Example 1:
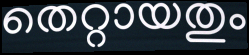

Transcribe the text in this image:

തെറ്റായതും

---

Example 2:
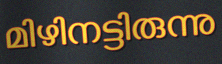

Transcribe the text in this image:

മിഴിനട്ടിരുന്നു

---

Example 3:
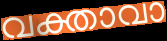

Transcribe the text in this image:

വക്താവാ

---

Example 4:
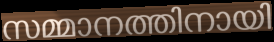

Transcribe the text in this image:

സമ്മാനത്തിനായി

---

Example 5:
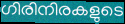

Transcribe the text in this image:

ഗിരിനിരകളുടെ